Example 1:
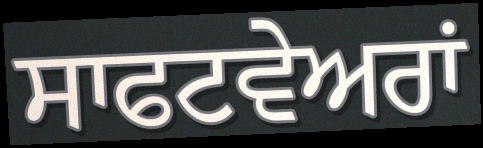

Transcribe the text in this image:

ਸਾਫਟਵੇਅਰਾਂ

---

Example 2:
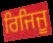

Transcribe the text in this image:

ਰਿਜਿਜੂ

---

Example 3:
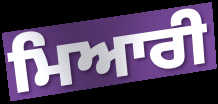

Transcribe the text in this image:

ਮਿਆਰੀ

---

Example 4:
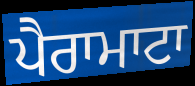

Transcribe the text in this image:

ਪੈਰਾਮਾਟਾ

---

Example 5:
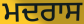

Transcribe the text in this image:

ਮਦਰਾਸ